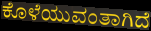
ಕೊಳೆಯುವಂತಾಗಿದೆ